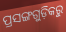
ପ୍ରସଙ୍ଗଗୁଡ଼ିକରୁ